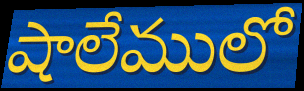
షాలేములో